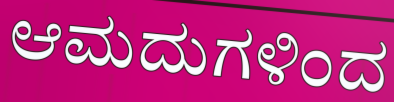
ಆಮದುಗಳಿಂದ